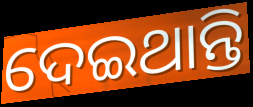
ଦେଇଥାନ୍ତି